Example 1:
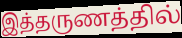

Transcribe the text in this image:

இத்தருணத்தில்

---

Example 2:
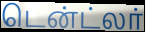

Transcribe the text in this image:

டென்ட்லர்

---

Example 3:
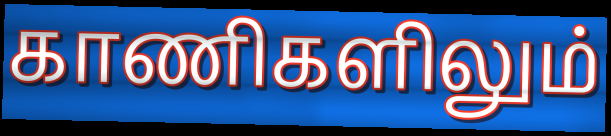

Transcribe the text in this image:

காணிகளிலும்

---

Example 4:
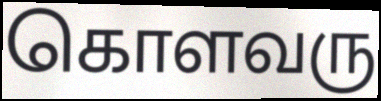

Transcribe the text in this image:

கொளவரு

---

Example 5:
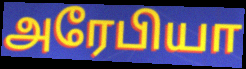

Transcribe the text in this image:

அரேபியா